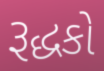
રૂદ્ધકો